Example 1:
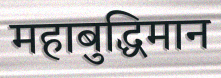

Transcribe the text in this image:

महाबुद्धिमान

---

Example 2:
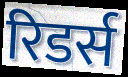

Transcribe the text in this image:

रिडर्स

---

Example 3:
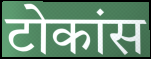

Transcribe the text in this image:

टोकांस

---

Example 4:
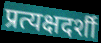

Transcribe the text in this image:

प्रत्यक्षदर्शी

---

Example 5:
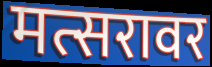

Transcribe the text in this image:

मत्सरावर